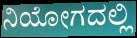
ನಿಯೋಗದಲ್ಲಿ